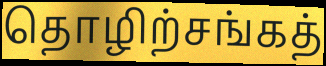
தொழிற்சங்கத்